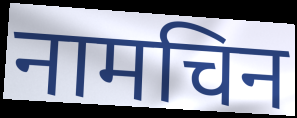
नामचिन